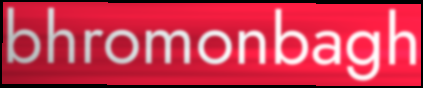
bhromonbagh